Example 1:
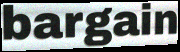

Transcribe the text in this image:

bargain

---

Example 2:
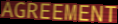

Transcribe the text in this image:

AGREEMENT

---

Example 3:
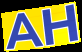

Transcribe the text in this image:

AH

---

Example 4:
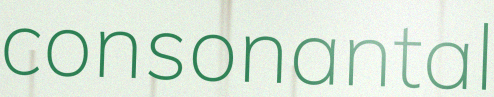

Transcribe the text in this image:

consonantal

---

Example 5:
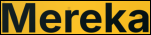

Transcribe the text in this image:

Mereka